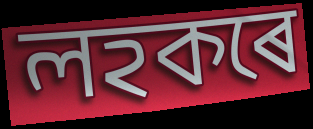
লহকৰে